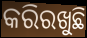
କରିରଖୁଛି